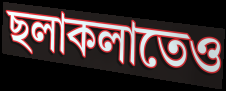
ছলাকলাতেও